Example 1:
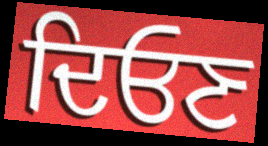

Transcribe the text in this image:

ਦਿਓਣ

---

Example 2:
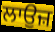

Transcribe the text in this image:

ਲਾਉਜ਼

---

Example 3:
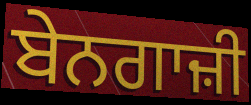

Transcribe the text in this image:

ਬੇਨਗਾਜ਼ੀ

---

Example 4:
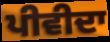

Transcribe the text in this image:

ਪੀਵੀਦਾ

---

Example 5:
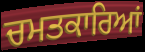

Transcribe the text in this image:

ਚਮਤਕਾਰਿਆਂ